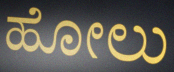
ಹೋಲು